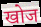
खोज